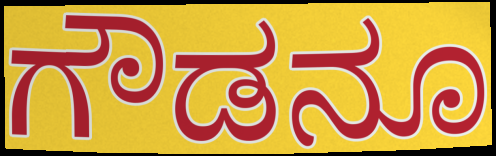
ಗೌಡನೂ